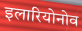
इलारियोनोव